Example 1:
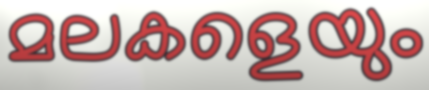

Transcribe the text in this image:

മലകളെയും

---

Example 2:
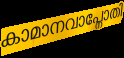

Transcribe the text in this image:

കാമാനവാപ്നോതി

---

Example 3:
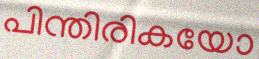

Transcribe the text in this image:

പിന്തിരികയോ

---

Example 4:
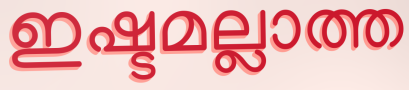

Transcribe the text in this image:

ഇഷ്ടമല്ലാത്ത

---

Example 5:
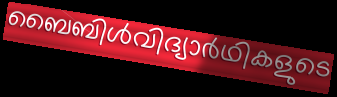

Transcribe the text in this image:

ബൈബിൾവിദ്യാർഥികളുടെ